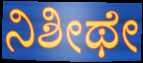
ನಿಶೀಥೇ